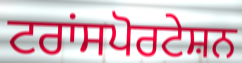
ਟਰਾਂਸਪੋਰਟੇਸ਼ਨ